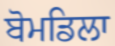
ਬੋਮਡਿਲਾ